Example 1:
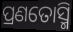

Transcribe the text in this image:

ପ୍ରଣତୋସ୍ମି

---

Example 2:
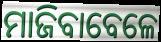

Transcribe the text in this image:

ମାଜିବାବେଳେ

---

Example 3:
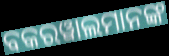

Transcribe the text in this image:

ବକରୱାଲମାନଙ୍କ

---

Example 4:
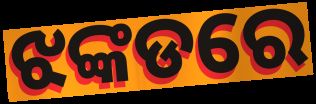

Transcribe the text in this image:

ଝଙ୍କଡରେ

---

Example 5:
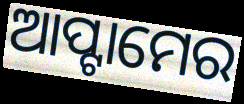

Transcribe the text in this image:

ଆପ୍ଟାମେର